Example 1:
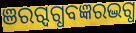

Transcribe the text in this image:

ଞରଗ୍ଦଗ୍ଧବଜ୍ଞରଦ୍ଭଗ୍ଧ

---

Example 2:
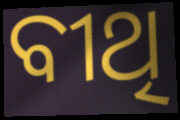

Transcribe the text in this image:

ବୀଥି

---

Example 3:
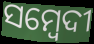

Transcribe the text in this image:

ସମ୍ବେଦୀ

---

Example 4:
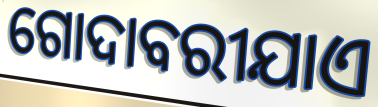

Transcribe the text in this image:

ଗୋଦାବରୀଯାଏ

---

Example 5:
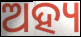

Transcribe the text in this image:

ଅହ୍ୟ